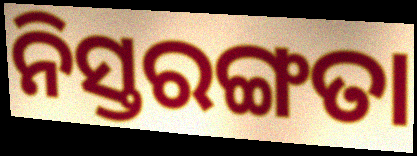
ନିସ୍ତରଙ୍ଗତା